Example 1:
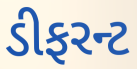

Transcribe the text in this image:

ડીફરન્ટ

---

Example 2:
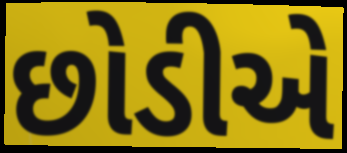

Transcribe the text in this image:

છોડીએ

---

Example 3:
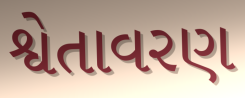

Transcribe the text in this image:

શ્વેતાવરણ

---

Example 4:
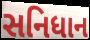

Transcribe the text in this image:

સનિધાન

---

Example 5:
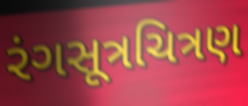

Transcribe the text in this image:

રંગસૂત્રચિત્રણ